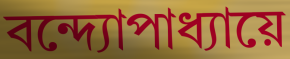
বন্দ্যোপাধ্যায়ে